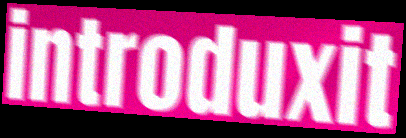
introduxit